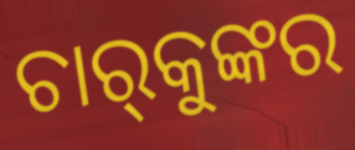
ଚାର୍‌କୁଙ୍କର